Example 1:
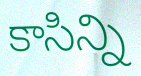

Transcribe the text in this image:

కాసిన్ని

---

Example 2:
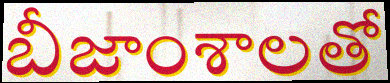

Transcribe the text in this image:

బీజాంశాలతో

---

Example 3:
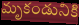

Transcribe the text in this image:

మృకండునికి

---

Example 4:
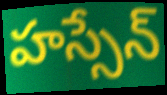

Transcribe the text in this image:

హస్సేన్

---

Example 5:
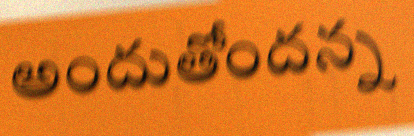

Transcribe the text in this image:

అందుతోందన్న